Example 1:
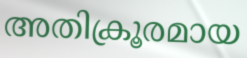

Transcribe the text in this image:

അതിക്രൂരമായ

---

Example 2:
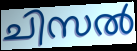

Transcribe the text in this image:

ചിസൽ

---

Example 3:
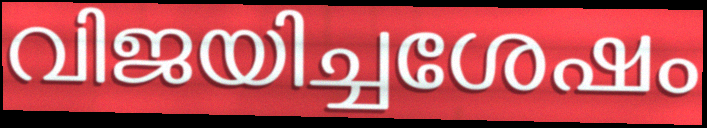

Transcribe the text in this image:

വിജയിച്ചശേഷം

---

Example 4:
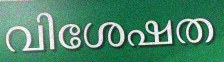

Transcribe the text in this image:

വിശേഷത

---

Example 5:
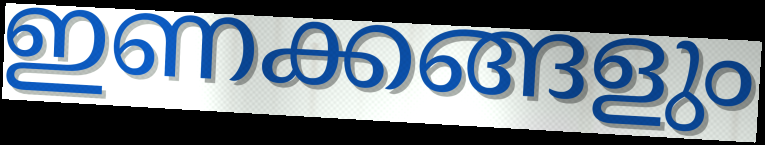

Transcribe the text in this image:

ഇണക്കങ്ങളും